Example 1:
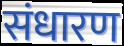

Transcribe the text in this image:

संधारण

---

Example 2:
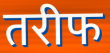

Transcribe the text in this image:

तरीफ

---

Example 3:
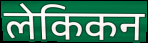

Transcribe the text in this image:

लेकिकन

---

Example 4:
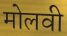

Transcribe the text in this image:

मोलवी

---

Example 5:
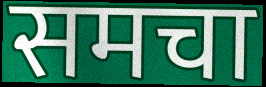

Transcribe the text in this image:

समचा